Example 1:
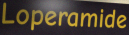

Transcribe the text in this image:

Loperamide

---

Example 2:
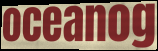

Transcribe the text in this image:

oceanog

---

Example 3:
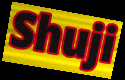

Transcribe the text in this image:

Shuji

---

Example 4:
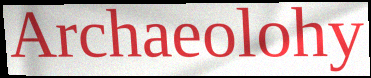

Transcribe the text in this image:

Archaeolohy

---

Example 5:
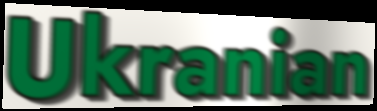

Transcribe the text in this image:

Ukranian